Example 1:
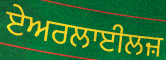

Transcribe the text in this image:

ਏਅਰਲਾਈਲਜ਼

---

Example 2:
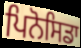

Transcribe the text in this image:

ਪਿਨੋਸਿਡਾ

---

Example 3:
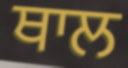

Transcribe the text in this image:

ਥਾਲ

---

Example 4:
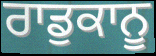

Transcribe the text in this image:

ਰਾਡੁਕਾਨੂ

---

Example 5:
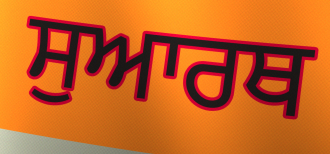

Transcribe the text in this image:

ਸੁਆਰਥ